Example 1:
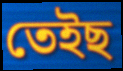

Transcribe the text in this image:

তেইছ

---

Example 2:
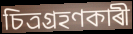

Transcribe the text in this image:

চিত্ৰগ্ৰহণকাৰী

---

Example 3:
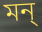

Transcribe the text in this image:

মন্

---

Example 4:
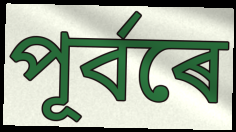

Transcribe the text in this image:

পূৰ্বৰে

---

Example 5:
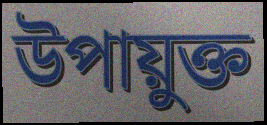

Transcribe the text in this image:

উপায়ুক্ত